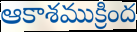
ఆకాశముక్రింద